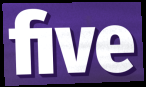
five